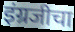
इंग्रजीचा